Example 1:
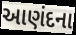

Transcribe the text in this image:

આણંદના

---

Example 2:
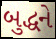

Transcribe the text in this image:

બુદ્ધને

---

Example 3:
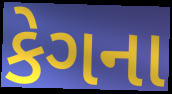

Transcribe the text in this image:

કેગના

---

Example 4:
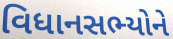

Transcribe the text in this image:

વિધાનસભ્યોને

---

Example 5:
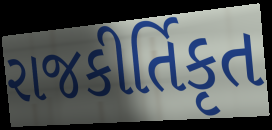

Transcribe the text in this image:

રાજકીર્તિકૃત